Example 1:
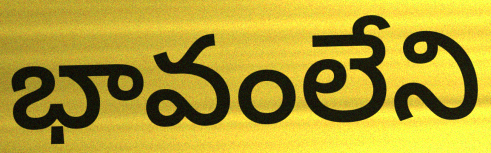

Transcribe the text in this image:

భావంలేని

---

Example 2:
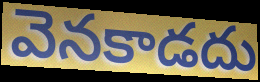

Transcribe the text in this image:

వెనకాడదు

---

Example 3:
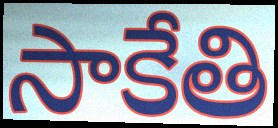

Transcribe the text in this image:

సాకేతి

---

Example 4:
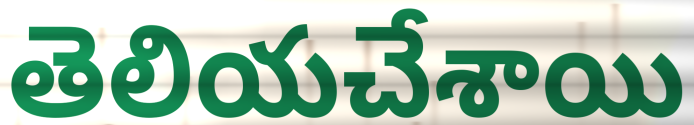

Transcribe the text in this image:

తెలియచేశాయి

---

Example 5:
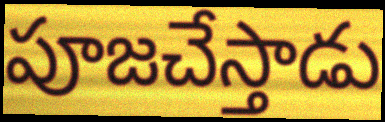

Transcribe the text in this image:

పూజచేస్తాడు